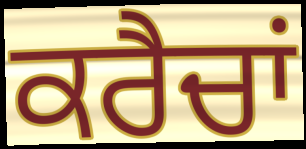
ਕਰੈਚਾਂ